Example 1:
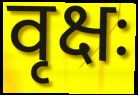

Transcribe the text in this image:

वृक्षः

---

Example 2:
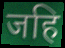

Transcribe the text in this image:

जहि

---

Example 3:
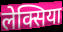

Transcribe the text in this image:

लेक्सिया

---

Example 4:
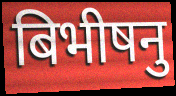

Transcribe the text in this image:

बिभीषनु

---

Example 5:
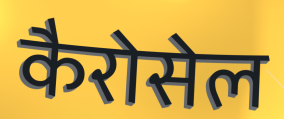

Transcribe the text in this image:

कैरोसेल